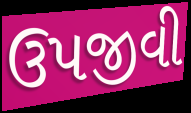
ઉપજીવી